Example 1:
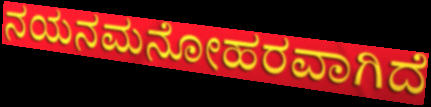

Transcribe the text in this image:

ನಯನಮನೋಹರವಾಗಿದೆ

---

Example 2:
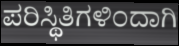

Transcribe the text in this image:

ಪರಿಸ್ಥಿತಿಗಳಿಂದಾಗಿ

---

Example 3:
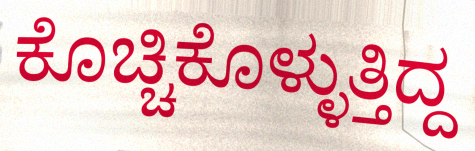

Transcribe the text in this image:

ಕೊಚ್ಚಿಕೊಳ್ಳುತ್ತಿದ್ದ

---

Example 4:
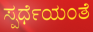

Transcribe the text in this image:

ಸ್ಪರ್ಧೆಯಂತೆ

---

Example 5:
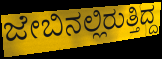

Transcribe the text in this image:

ಜೇಬಿನಲ್ಲಿರುತ್ತಿದ್ದ